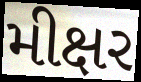
મીક્ષર